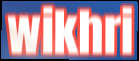
wikhri